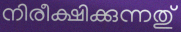
നിരീക്ഷിക്കുന്നതു്